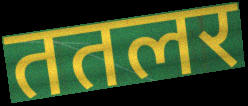
ततलर